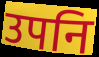
उपनि